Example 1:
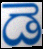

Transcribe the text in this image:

డె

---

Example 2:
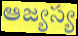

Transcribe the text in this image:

ఆజ్యస్య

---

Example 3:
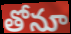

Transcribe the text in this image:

తోనూ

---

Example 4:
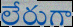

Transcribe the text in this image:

లేరుగా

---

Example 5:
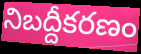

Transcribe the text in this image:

నిబద్దీకరణం